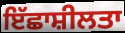
ਇੱਛਾਸ਼ੀਲਤਾ